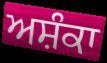
ਅਸ਼ੰਕਾ